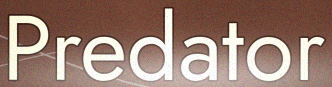
Predator